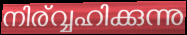
നിര്വ്വഹിക്കുന്നു